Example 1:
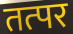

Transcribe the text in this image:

तत्‍पर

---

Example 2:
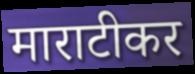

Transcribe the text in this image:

माराटीकर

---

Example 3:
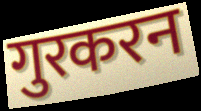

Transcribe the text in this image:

गुरकरन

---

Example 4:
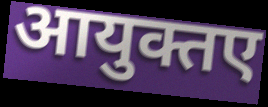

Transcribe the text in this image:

आयुक्तए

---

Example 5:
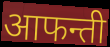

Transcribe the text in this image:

आफन्ती